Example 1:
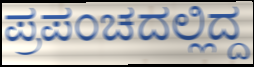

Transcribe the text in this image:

ಪ್ರಪಂಚದಲ್ಲಿದ್ದ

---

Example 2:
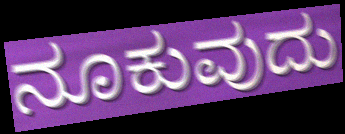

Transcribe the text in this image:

ನೂಕುವುದು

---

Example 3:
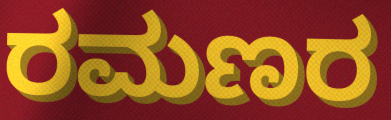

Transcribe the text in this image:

ರಮಣರ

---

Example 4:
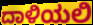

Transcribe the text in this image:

ದಾಳಿಯಲಿ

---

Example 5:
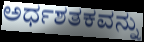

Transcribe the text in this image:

ಅರ್ಧಶತಕವನ್ನು